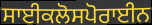
ਸਾਈਕਲੋਸਪੋਰਾਈਨ